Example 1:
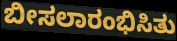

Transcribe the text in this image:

ಬೀಸಲಾರಂಭಿಸಿತು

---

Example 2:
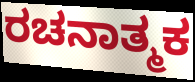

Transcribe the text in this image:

ರಚನಾತ್ಮಕ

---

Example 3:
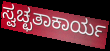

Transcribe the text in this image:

ಸ್ವಚ್ಛತಾಕಾರ್ಯ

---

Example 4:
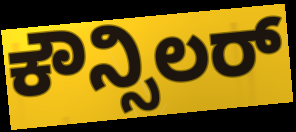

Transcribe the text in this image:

ಕೌನ್ಸಿಲರ್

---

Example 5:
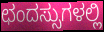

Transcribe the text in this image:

ಛಂದಸ್ಸುಗಳಲ್ಲಿ